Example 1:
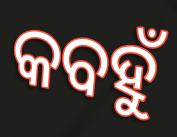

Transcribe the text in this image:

କବହୁଁ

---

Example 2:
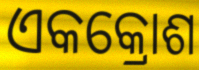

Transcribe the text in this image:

ଏକକ୍ରୋଶ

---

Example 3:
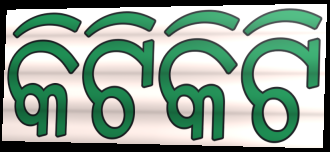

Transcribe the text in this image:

କିଟିକିଟି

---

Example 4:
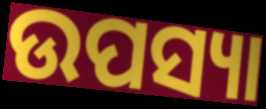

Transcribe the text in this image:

ଉପସ୍ୟା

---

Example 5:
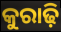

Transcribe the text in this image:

କୁରାଢ଼ି